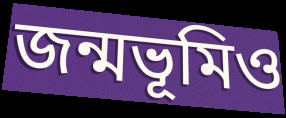
জন্মভূমিও